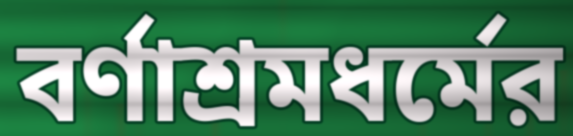
বর্ণাশ্রমধর্মের